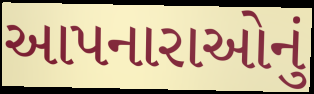
આપનારાઓનું